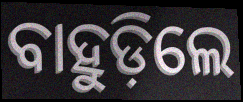
ବାହୁଡ଼ିଲେ